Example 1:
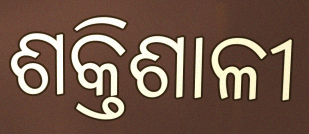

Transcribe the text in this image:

ଶକ୍ତିଶାଳୀ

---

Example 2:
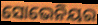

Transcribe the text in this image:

ସୋଭେନିୟର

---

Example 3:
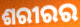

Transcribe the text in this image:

ଶରୀରର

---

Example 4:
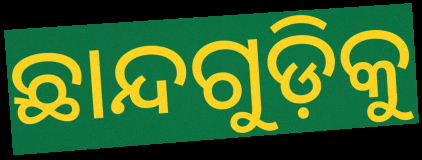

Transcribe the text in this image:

ଛାନ୍ଦଗୁଡ଼ିକୁ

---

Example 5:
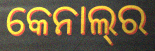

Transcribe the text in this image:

କେନାଲ୍‍ର